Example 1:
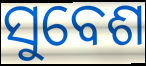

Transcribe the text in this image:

ସୁବେଶ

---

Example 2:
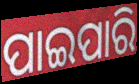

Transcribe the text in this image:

ପାଇପାରି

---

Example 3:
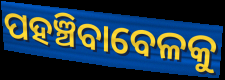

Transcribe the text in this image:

ପହଞ୍ଚିବାବେଳକୁ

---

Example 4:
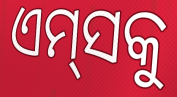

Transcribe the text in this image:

ଏମ୍‌ସକୁ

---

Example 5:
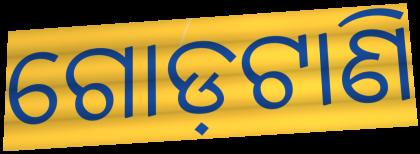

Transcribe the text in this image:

ଗୋଡ଼ଟାଣି